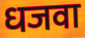
धजवा